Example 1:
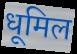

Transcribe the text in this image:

धूमिल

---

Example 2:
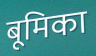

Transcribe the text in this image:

बूमिका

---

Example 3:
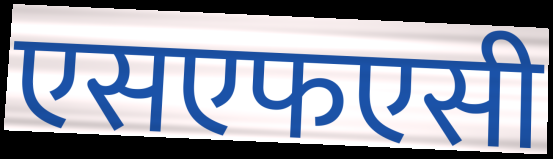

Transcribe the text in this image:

एसएफएसी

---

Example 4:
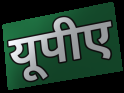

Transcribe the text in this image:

यूपीए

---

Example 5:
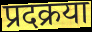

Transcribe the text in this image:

प्रदक्रया